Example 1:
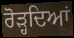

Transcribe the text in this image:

ਰੋੜ੍ਹਦਿਆਂ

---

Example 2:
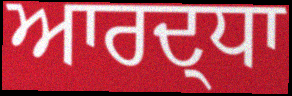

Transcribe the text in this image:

ਆਰਦ੍ਧਾ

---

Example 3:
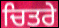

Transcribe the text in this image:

ਚਿਤਰੇ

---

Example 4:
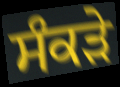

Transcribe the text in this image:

ਸੰਕੜੇ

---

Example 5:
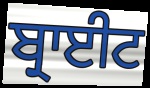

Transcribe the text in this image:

ਬ੍ਰਾਈਟ